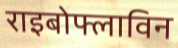
राइबोफ्लाविन